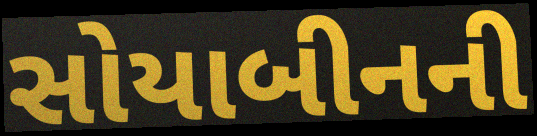
સોયાબીનની